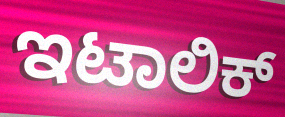
ಇಟಾಲಿಕ್